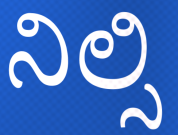
ನಿಲ್ಸಿ